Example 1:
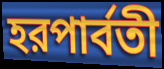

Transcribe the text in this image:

হরপার্বতী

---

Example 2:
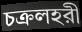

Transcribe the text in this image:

চক্রলহরী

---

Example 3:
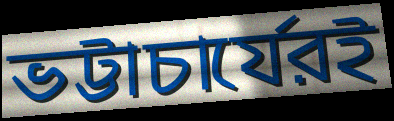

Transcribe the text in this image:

ভট্টাচার্যেরই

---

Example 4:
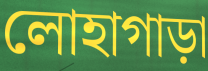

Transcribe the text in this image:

লোহাগাড়া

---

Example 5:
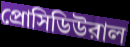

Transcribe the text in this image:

প্রোসিডিউরাল